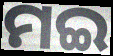
ମଇ